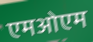
एमओएम